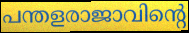
പന്തളരാജാവിന്റെ